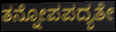
ತನ್ನೋಪಪದ್ಯತೇ